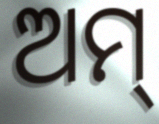
ଅମ୍